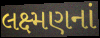
લક્ષ્મણનાં